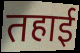
तहाई